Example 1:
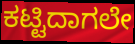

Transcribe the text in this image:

ಕಟ್ಟಿದಾಗಲೇ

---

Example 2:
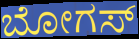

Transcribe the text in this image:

ಬೋಗಸ್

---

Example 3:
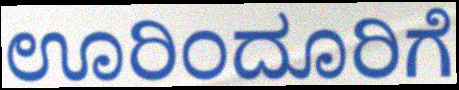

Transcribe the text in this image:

ಊರಿಂದೂರಿಗೆ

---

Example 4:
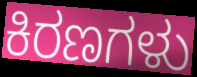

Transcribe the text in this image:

ಕಿರಣಗಳು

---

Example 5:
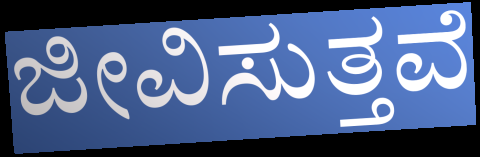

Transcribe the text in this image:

ಜೀವಿಸುತ್ತವೆ